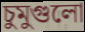
চুমুগুলো